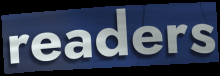
readers